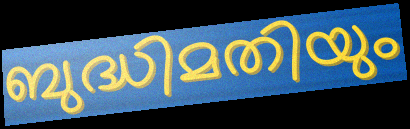
ബുദ്ധിമതിയും